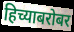
हिच्याबरोबर